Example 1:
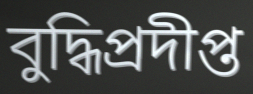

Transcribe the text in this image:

বুদ্ধিপ্রদীপ্ত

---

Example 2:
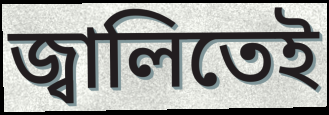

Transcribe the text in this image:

জ্বালিতেই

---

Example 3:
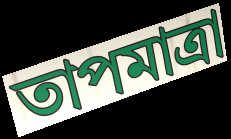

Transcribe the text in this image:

তাপমাত্রা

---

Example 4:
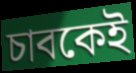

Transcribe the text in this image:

চাবকেই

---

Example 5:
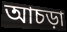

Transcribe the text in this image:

আচড়া